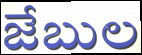
జేబుల